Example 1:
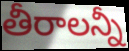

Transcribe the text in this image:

తీరాలన్నీ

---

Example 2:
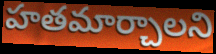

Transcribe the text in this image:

హతమార్చాలని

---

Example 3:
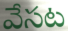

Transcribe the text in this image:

వేసట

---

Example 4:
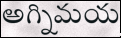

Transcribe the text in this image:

అగ్నిమయ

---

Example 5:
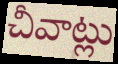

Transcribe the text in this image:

చీవాట్లు